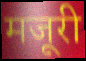
मजूरी